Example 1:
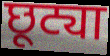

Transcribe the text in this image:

छूट्या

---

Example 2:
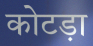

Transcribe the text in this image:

कोटड़ा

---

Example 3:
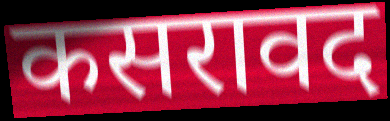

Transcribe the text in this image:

कसरावद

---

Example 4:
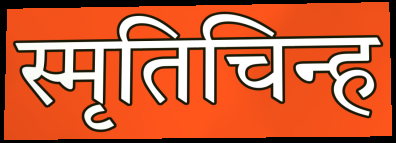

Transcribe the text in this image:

स्मृतिचिन्ह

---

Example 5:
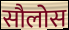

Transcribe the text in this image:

सौलोस